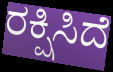
ರಕ್ಷಿಸಿದೆ